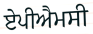
ਏਪੀਐਮਸੀ